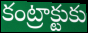
కంట్రాక్టుకు